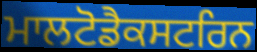
ਮਾਲਟੋਡੈਕਸਟਰਿਨ